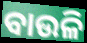
ବାଉଳି